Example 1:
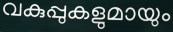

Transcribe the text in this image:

വകുപ്പുകളുമായും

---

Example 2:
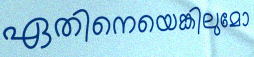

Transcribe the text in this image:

ഏതിനെയെങ്കിലുമോ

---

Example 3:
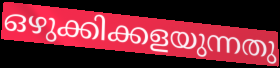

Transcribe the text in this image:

ഒഴുക്കിക്കളയുന്നതു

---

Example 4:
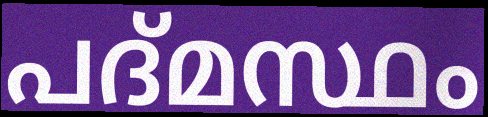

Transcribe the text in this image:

പദ്മസ്ഥം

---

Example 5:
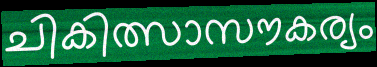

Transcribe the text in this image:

ചികിത്സാസൗകര്യം